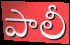
పాలీ